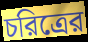
চরিত্রের